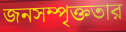
জনসম্পৃক্ততার